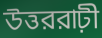
উত্তররাঢ়ী